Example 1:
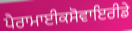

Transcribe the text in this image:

ਪੈਰਾਮਾਈਕਸੋਵਾਇਰੀਡੇ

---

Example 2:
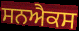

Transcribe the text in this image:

ਸਨਐਕਸ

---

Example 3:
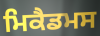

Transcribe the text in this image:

ਮਿਕੈਡਮਸ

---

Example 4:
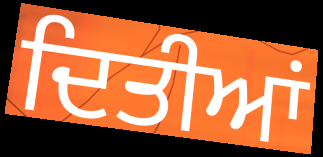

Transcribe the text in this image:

ਦਿਤੀਆਂ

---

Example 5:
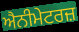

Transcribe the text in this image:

ਐਨੀਮੇਟਰਜ਼